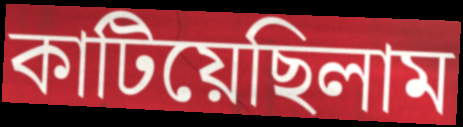
কাটিয়েছিলাম